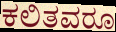
ಕಲಿತವರೂ